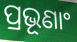
ପ୍ରଭୂଣାଂ